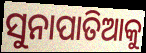
ସୁନାପାତିଆକୁ